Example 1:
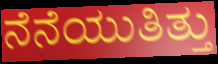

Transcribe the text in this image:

ನೆನೆಯುತಿತ್ತು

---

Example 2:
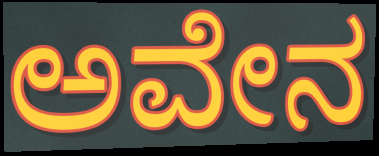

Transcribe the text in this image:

ಅವೇನ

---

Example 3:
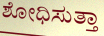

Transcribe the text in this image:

ಶೋಧಿಸುತ್ತಾ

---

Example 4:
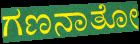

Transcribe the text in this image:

ಗಣನಾತೋ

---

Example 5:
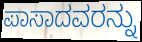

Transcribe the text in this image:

ಪಾಸಾದವರನ್ನು